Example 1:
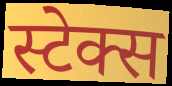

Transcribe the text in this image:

स्टेक्स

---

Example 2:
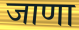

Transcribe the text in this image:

जाणा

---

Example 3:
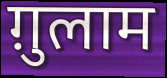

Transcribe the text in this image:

ग़ुलाम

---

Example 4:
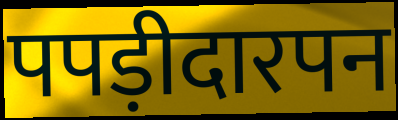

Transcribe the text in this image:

पपड़ीदारपन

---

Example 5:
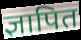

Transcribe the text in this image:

ज्ञापित